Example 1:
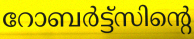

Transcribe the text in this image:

റോബർട്ട്സിന്റെ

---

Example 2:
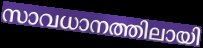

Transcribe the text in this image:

സാവധാനത്തിലായി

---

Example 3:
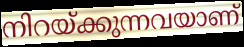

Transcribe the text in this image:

നിറയ്ക്കുന്നവയാണ്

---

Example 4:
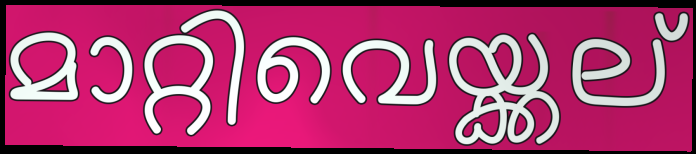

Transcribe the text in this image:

മാറ്റിവെയ്ക്കല്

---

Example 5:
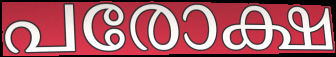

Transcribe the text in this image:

പരോക്ഷ